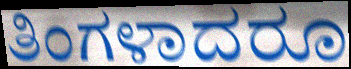
ತಿಂಗಳಾದರೂ